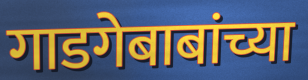
गाडगेबाबांच्या